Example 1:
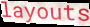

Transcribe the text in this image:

layouts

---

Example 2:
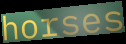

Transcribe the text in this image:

horses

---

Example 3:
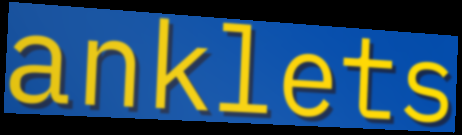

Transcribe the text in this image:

anklets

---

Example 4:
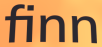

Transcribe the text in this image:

finn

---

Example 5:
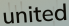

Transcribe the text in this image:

united